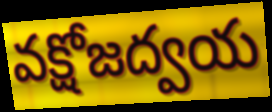
వక్షోజద్వయ